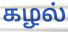
கழல்